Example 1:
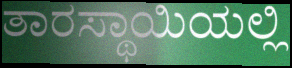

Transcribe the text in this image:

ತಾರಸ್ಥಾಯಿಯಲ್ಲಿ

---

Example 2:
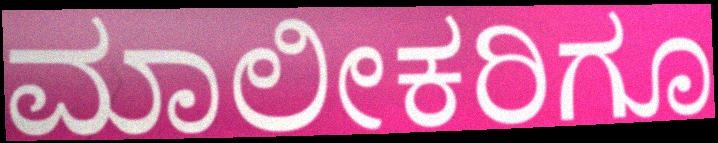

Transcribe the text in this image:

ಮಾಲೀಕರಿಗೂ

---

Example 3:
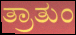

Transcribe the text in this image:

ತ್ರಾತುಂ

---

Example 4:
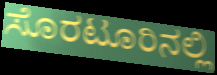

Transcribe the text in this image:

ಸೊರಟೂರಿನಲ್ಲಿ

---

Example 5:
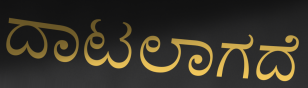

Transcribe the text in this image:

ದಾಟಲಾಗದೆ